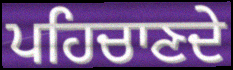
ਪਹਿਚਾਣਦੇ